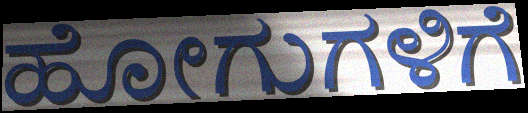
ಹೋಗುಗಳಿಗೆ